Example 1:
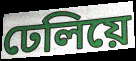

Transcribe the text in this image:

ঢেলিয়ে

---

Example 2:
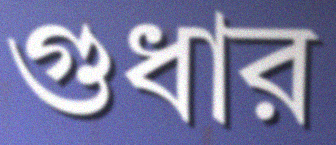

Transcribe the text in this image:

গুধার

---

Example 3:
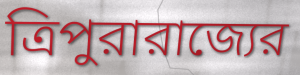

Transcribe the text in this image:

ত্রিপুরারাজ্যের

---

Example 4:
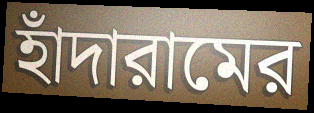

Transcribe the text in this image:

হাঁদারামের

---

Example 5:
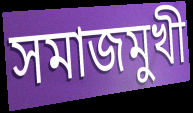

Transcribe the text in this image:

সমাজমুখী